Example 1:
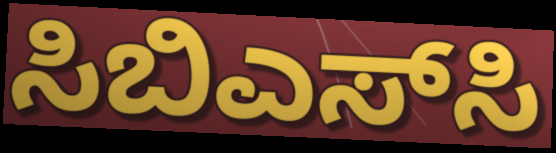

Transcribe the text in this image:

ಸಿಬಿಎಸ್‌ಸಿ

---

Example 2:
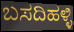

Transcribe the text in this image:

ಬಸದಿಹಳ್ಳಿ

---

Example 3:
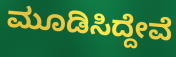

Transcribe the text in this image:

ಮೂಡಿಸಿದ್ದೇವೆ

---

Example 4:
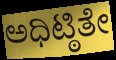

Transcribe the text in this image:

ಅಧಿಟ್ಠಿತೇ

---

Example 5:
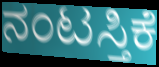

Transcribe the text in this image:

ನಂಟಸ್ತಿಕೆ